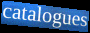
catalogues